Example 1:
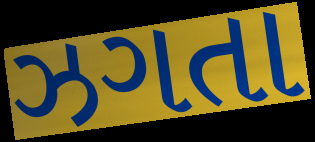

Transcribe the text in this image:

ઝગતા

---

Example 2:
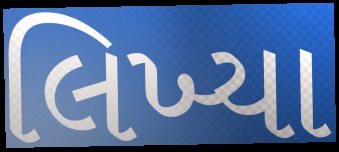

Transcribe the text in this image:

લિખ્યા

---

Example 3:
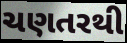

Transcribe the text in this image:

ચણતરથી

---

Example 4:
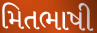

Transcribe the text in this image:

મિતભાષી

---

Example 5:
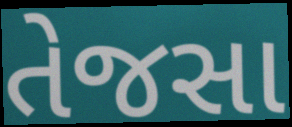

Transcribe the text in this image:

તેજસા